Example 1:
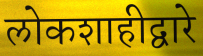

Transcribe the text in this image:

लोकशाहीद्वारे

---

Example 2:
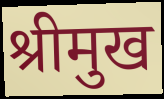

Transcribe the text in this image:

श्रीमुख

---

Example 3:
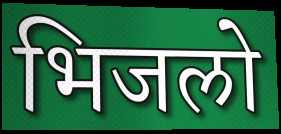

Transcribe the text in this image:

भिजलो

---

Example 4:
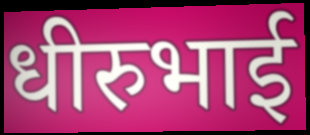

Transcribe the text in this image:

धीरुभाई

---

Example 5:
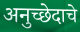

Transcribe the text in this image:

अनुच्छेदाचे